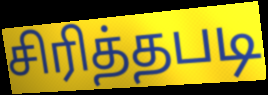
சிரித்தபடி